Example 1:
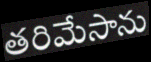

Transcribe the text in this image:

తరిమేసాను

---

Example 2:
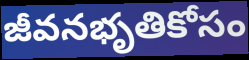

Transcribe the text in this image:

జీవనభృతికోసం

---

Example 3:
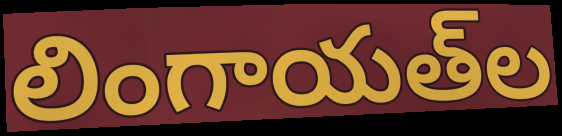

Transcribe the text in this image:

లింగాయత్‌ల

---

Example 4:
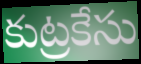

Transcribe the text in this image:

కుట్రకేసు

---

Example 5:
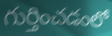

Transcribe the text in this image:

గుర్తించడంలో